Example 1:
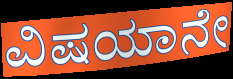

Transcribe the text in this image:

ವಿಷಯಾನೇ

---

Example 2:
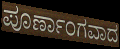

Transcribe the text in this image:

ಪೂರ್ಣಾಂಗವಾದ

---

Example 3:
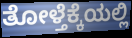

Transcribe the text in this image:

ತೋಳ್ತೆಕ್ಕೆಯಲ್ಲಿ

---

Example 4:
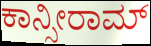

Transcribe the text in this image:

ಕಾನ್ಸೀರಾಮ್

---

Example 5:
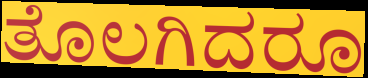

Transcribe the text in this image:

ತೊಲಗಿದರೂ